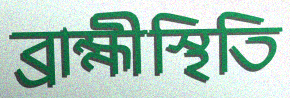
ব্রাহ্মীস্থিতি